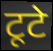
टूटे